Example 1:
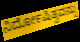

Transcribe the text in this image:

ನಿರ್ದೋಷಿತ್ವವನ್ನು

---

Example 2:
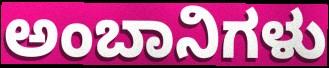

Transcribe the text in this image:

ಅಂಬಾನಿಗಳು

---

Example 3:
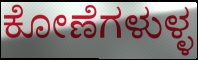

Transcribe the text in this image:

ಕೋಣೆಗಳುಳ್ಳ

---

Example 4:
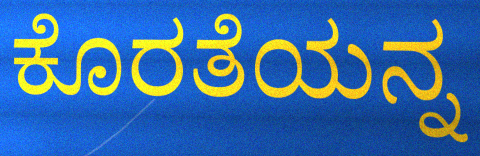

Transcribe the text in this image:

ಕೊರತೆಯನ್ನ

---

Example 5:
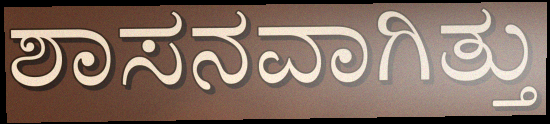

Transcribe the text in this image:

ಶಾಸನವಾಗಿತ್ತು